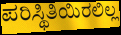
ಪರಿಸ್ಥಿತಿಯಿರಲಿಲ್ಲ